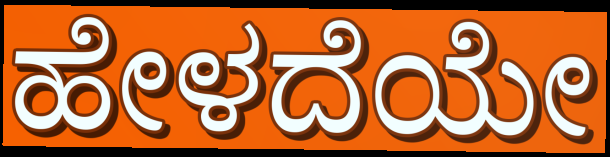
ಹೇಳದೆಯೇ